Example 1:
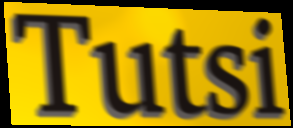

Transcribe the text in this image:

Tutsi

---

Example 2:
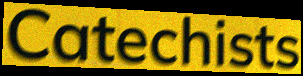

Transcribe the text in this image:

Catechists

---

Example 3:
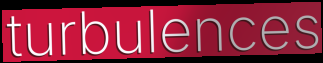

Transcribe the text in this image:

turbulences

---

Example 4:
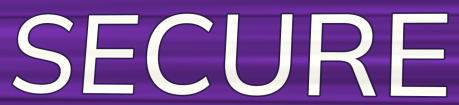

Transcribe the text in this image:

SECURE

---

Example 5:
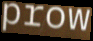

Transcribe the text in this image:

prow